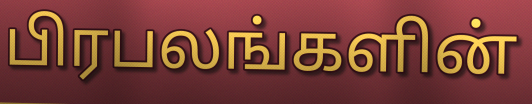
பிரபலங்களின்